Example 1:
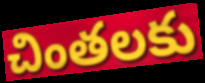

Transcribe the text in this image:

చింతలకు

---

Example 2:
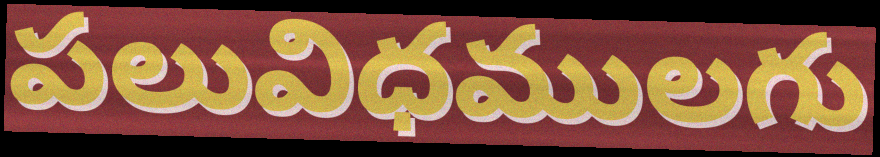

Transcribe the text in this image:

పలువిధములగు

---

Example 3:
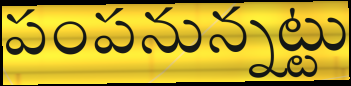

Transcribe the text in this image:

పంపనున్నట్టు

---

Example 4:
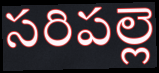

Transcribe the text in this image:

సరిపల్లె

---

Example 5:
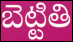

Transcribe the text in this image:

బెట్టితి